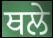
ਥਲੇ